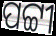
ପଟ୍ଟୀ